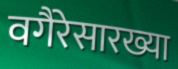
वगैरेसारख्या